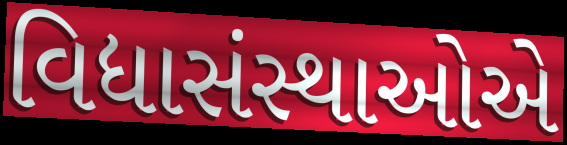
વિદ્યાસંસ્થાઓએ